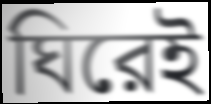
ঘিরেই